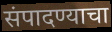
संपादण्याचा